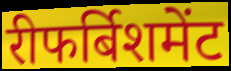
रीफर्बिशमेंट